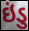
ઇંડુ